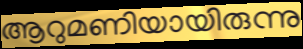
ആറുമണിയായിരുന്നു